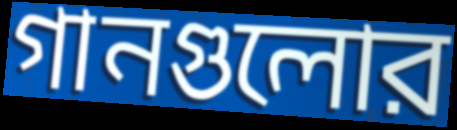
গানগুলোর